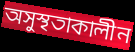
অসুস্থতাকালীন